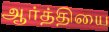
ஆர்த்தியை